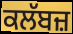
ਕਲੱਬਜ਼